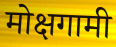
मोक्षगामी